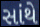
સાંથે